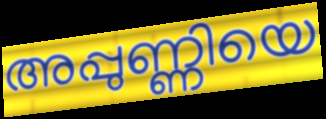
അപ്പുണ്ണിയെ